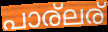
പാര്ലര്